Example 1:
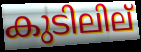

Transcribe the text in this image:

കുടിലില്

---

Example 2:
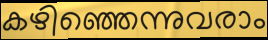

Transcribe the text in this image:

കഴിഞ്ഞെന്നുവരാം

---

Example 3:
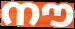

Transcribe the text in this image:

നൗ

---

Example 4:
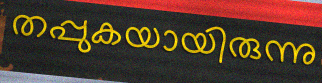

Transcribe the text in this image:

തപ്പുകയായിരുന്നു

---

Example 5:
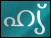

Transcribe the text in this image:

ഹ്യ്